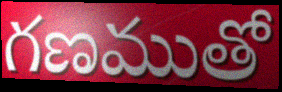
గణముతో